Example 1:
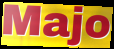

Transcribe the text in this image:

Majo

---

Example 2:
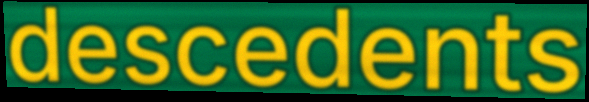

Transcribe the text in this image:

descedents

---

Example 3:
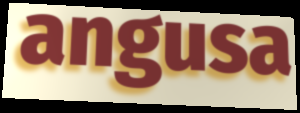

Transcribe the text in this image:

angusa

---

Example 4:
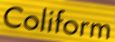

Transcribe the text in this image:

Coliform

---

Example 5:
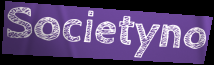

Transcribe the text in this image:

Societyno